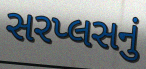
સરપ્લસનું